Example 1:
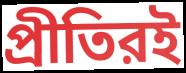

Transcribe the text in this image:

প্রীতিরই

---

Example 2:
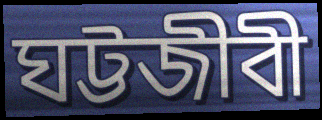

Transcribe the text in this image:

ঘট্টজীবী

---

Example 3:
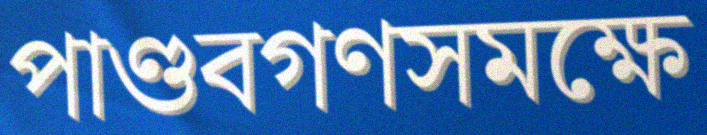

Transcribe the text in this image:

পাণ্ডবগণসমক্ষে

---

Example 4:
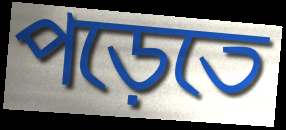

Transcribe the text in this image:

পড়েতে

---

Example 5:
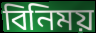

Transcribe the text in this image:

বিনিময়